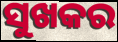
ସୁଖକର